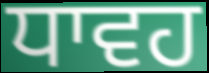
ਧਾਵਹ